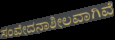
ಸಂವೇದನಾಶೀಲವಾಗಿವೆ